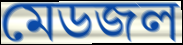
মেডজল